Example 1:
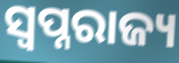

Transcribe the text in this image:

ସ୍ୱପ୍ନରାଜ୍ୟ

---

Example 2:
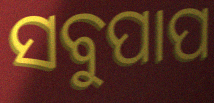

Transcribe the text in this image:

ସବୁପାପ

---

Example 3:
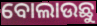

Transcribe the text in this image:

ବୋଲାଉଛୁ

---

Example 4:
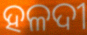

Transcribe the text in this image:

ହଳଦୀ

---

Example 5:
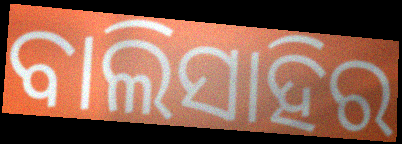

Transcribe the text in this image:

ବାଲିସାହିର